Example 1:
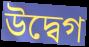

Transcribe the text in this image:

উদ্বেগ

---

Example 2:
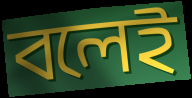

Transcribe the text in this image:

বলেই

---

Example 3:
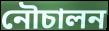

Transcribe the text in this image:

নৌচালন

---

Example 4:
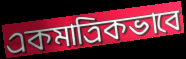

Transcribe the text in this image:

একমাত্রিকভাবে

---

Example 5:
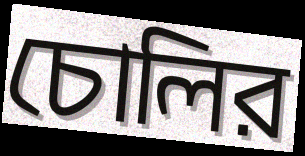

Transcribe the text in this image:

চোলির